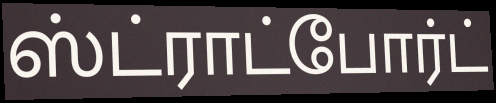
ஸ்ட்ராட்போர்ட்